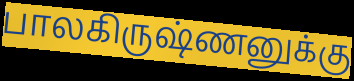
பாலகிருஷ்ணனுக்கு